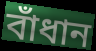
বাঁধান